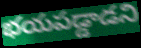
భయపడ్డాడని